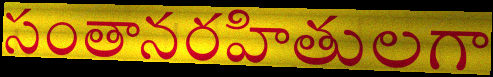
సంతానరహితులగా